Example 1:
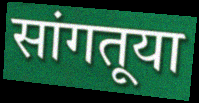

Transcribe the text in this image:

सांगतूया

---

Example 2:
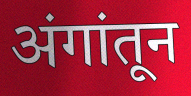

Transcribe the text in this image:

अंगांतून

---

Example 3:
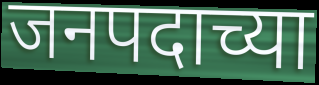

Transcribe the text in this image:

जनपदाच्या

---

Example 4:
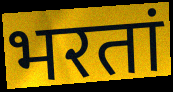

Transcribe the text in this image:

भरतां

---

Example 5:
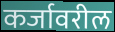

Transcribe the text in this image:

कर्जावरील